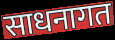
साधनागत